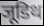
जूडिथ